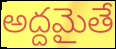
అద్దమైతే